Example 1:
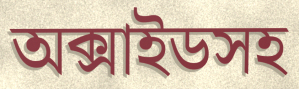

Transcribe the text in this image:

অক্সাইডসহ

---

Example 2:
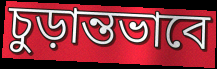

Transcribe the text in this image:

চুড়ান্তভাবে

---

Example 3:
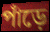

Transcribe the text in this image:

পাঁড়ে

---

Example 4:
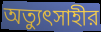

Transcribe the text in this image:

অত্যুৎসাহীর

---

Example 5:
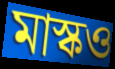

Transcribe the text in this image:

মাস্কও